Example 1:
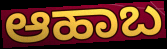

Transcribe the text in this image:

ಆಹಾಬ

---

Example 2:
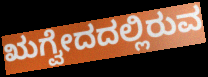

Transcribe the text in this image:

ಋಗ್ವೇದದಲ್ಲಿರುವ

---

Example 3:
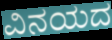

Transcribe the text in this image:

ವಿನಯದ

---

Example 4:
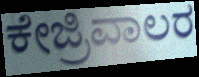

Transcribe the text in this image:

ಕೇಜ್ರಿವಾಲರ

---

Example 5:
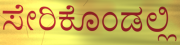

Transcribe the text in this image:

ಸೇರಿಕೊಂಡಲ್ಲಿ